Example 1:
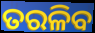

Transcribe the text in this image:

ତରଳିବ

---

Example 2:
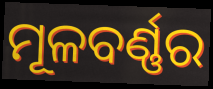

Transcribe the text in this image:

ମୂଳବର୍ଣ୍ଣର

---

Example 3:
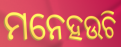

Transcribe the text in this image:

ମନେହଉଚି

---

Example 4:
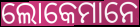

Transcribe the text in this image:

ଲୋକେମାନେ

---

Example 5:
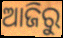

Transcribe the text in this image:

ଆଜିରୁ